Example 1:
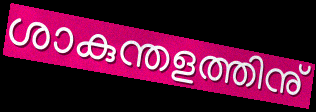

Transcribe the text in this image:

ശാകുന്തളത്തിനു്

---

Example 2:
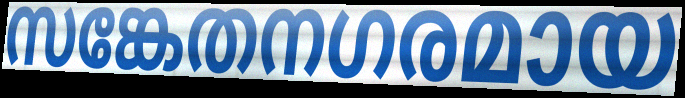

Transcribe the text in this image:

സങ്കേതനഗരമായ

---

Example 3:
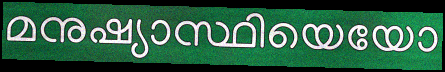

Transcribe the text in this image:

മനുഷ്യാസ്ഥിയെയോ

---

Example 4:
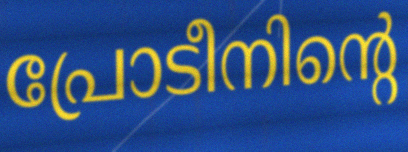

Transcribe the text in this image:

പ്രോടീനിന്റെ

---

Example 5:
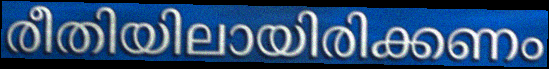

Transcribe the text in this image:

രീതിയിലായിരിക്കണം